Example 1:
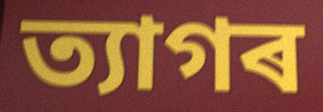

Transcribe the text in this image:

ত্যাগৰ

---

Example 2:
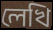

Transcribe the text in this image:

লেখি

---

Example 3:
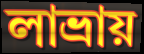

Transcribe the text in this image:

লাভ্ৰায়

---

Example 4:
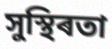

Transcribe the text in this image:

সুস্থিৰতা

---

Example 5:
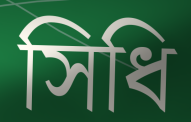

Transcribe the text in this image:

সিধি